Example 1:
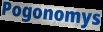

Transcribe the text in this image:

Pogonomys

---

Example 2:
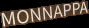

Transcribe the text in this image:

MONNAPPA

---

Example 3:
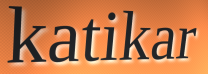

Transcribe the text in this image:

katikar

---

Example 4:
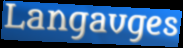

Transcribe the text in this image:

Langauges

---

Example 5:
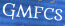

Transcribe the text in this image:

GMFCS